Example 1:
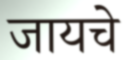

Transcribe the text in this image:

जायचे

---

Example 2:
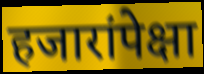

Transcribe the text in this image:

हजारांपेक्षा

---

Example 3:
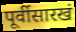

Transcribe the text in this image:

पूर्वीसारखं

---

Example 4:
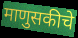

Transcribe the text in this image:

माणुसकीचे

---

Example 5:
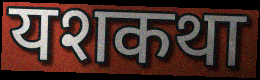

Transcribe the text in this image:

यशकथा